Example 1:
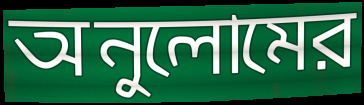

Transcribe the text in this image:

অনুলোমের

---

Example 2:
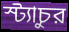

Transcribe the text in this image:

স্ট্যাচুর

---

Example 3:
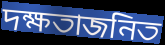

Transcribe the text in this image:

দক্ষতাজনিত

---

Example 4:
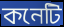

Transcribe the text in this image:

কনেটি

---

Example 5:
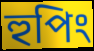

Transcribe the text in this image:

হুপিং